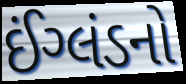
ઈંગ્લંડનો